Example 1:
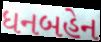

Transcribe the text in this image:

ધનબહેન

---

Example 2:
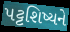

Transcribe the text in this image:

પટ્ટશિષ્યને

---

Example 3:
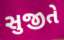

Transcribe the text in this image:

સુજીતે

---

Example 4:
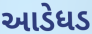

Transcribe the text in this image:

આડેધડ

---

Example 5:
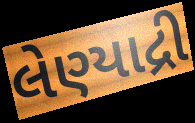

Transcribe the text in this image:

લેણ્યાદ્રી